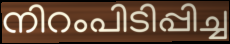
നിറംപിടിപ്പിച്ച